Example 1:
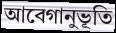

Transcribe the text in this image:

আবেগানুভূতি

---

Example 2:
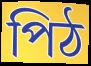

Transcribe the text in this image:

পিঠ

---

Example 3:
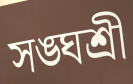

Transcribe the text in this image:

সঙ্ঘশ্রী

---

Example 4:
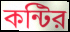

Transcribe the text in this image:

কন্টির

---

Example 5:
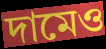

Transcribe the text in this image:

দামেও